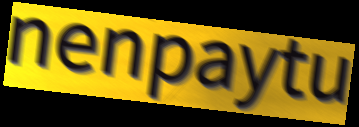
nenpaytu